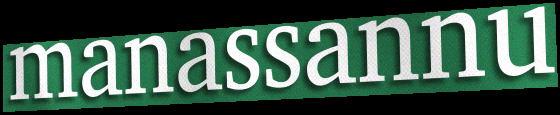
manassannu